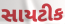
સાયટીક